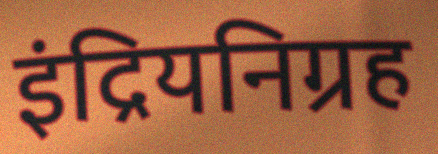
इंद्रियनिग्रह